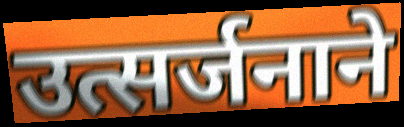
उत्सर्जनाने